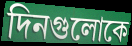
দিনগুলোকে